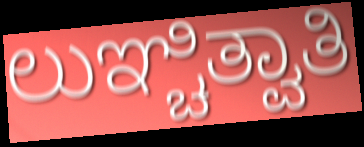
ಲುಞ್ಚಿತ್ವಾತಿ